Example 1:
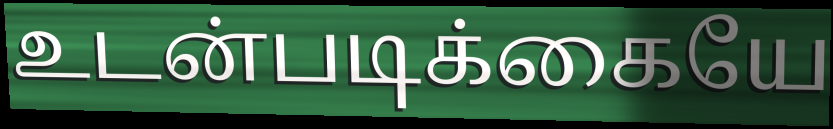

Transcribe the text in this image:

உடன்படிக்கையே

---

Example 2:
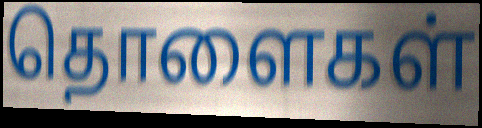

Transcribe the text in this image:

தொளைகள்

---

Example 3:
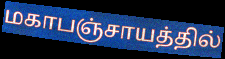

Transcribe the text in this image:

மகாபஞ்சாயத்தில்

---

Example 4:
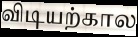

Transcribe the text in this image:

விடியற்கால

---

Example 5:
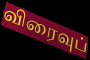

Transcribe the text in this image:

விரைவுப்